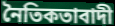
নৈতিকতাবাদী